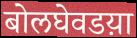
बोलघेवडय़ा